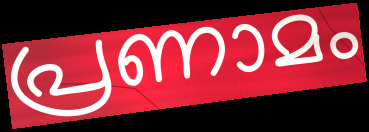
പ്രണാമം